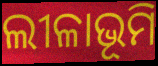
ଲୀଳାଭୂମି